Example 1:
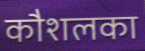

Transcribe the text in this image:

कौशलका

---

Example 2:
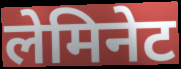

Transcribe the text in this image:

लेमिनेट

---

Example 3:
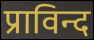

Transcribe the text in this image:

प्राविन्द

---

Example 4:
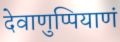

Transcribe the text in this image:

देवाणुप्पियाणं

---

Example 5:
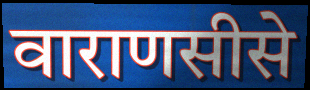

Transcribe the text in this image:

वाराणसीसे